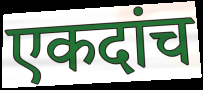
एकदांच